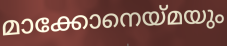
മാക്കോനെയ്മയും